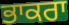
ਭਾਕਰਾ